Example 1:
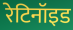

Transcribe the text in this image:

रेटिनॉइड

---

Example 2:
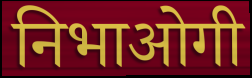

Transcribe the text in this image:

निभाओगी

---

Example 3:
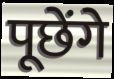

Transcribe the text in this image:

पूछेंगे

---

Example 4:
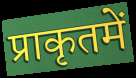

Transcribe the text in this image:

प्राकृतमें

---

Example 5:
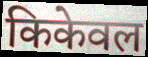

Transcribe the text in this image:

किकेवल